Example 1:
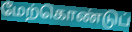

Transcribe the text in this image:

மேற்கொண்டுப்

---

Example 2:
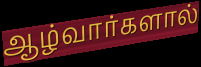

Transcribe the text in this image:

ஆழ்வார்களால்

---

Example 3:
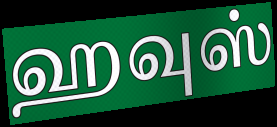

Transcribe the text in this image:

ஹவுஸ்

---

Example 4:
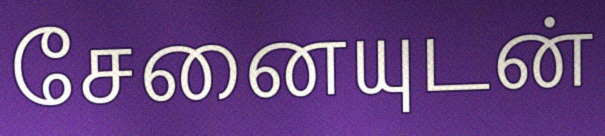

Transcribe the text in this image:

சேனையுடன்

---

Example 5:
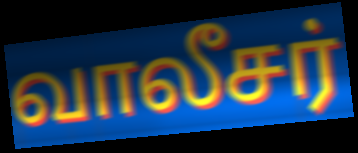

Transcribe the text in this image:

வாலீசர்